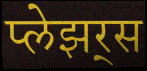
प्लेझर्स